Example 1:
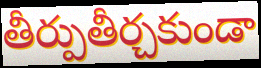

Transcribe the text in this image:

తీర్పుతీర్చకుండా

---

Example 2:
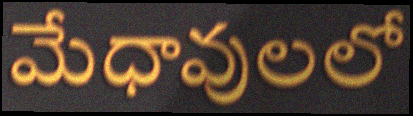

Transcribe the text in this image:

మేధావులలో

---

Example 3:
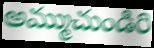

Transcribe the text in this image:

అమ్ముచుండిరి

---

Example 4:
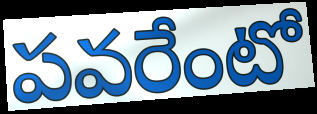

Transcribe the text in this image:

పవరేంటో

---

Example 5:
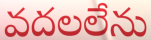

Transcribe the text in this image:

వదలలేను